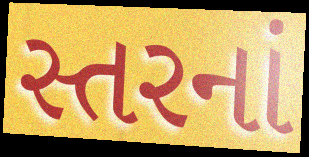
સ્તરનાં